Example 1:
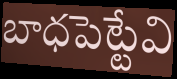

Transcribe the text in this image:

బాధపెట్టేవి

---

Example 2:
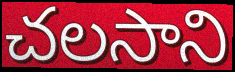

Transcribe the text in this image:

చలసాని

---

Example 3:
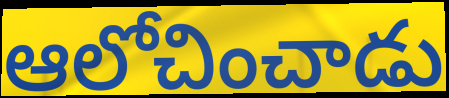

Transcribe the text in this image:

ఆలోచించాడు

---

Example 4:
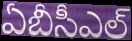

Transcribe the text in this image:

ఏబీసీఎల్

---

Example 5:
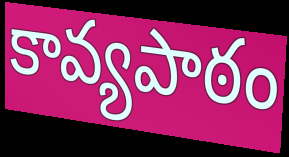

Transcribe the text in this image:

కావ్యపాఠం